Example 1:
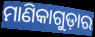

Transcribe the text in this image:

ମାଣିକାଗୁଡ଼ାର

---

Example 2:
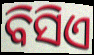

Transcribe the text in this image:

ବିସିଏ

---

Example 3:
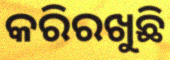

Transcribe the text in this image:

କରିରଖୁଛି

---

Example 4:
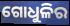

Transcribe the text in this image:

ଗୋଧୁଳିର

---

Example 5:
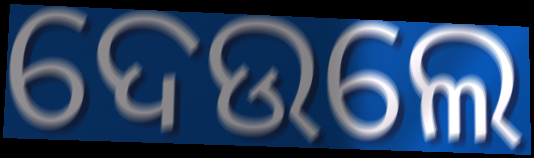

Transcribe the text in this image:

ଦେଉଲେ